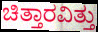
ಚಿತ್ತಾರವಿತ್ತು